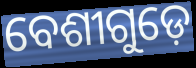
ବେଶୀଗୁଡ଼େ